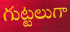
గుట్టలుగా